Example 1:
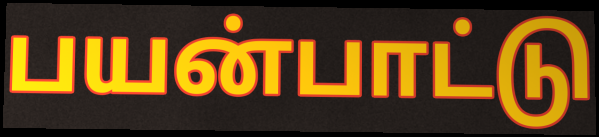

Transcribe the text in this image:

பயன்பாட்டு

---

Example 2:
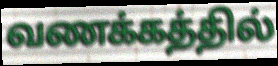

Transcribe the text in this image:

வணக்கத்தில்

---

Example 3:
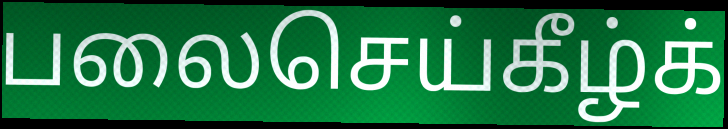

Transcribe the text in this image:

பலைசெய்கீழ்க்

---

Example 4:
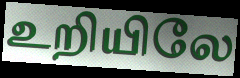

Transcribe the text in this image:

உறியிலே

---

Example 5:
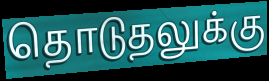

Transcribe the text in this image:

தொடுதலுக்கு